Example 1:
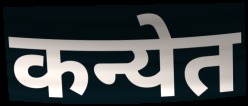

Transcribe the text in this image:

कन्येत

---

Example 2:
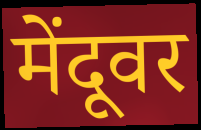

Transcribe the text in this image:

मेंदूवर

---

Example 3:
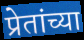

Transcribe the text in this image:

प्रेतांच्या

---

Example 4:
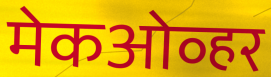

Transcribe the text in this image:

मेकओव्हर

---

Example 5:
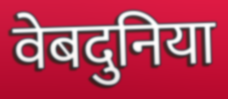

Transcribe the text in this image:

वेबदुनिया